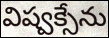
విష్వక్సేను